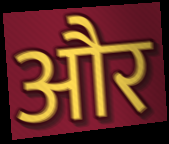
और